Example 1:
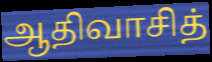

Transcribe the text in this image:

ஆதிவாசித்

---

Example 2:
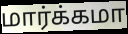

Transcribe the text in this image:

மார்க்கமா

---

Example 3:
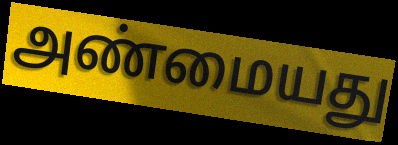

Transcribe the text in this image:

அண்மையது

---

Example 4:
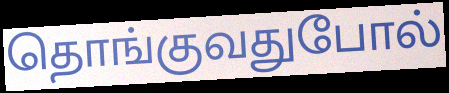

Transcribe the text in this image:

தொங்குவதுபோல்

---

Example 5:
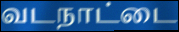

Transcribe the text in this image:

வடநாட்டை